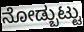
ನೋಡ್ಬುಟ್ಟು